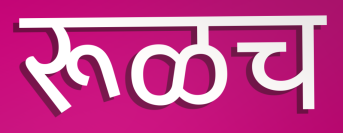
रूळच